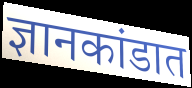
ज्ञानकांडात